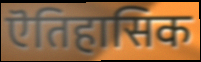
ऎतिहासिक